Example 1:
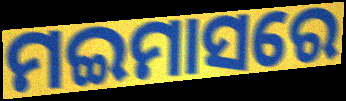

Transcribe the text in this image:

ମଇମାସରେ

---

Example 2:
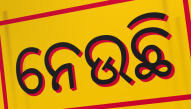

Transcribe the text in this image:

ନେଉଛି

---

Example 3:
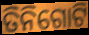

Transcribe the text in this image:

ତିନିଗୋଟି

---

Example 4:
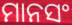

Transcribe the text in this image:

ମାନସଂ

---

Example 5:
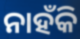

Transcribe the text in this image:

ନାହଁକି